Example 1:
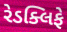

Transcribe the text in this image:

રેડક્લિફે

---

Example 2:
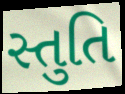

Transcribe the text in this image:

સ્તુતિ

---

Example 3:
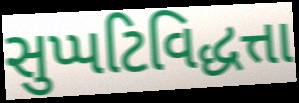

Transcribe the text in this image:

સુપ્પટિવિદ્ધત્તા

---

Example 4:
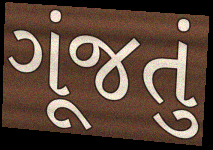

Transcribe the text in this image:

ગૂંજતું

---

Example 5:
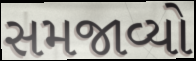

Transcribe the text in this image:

સમજાવ્યો